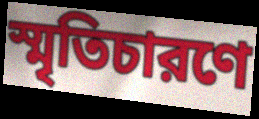
স্মৃতিচারণে